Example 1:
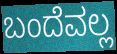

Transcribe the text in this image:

ಬಂದೆವಲ್ಲ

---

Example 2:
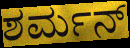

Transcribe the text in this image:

ಶರ್ಮನ್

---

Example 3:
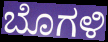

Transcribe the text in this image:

ಬೊಗಳಿ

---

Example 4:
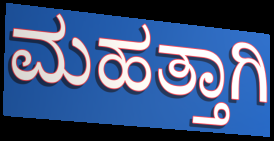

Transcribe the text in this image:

ಮಹತ್ತಾಗಿ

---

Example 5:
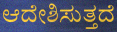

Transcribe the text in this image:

ಆದೇಶಿಸುತ್ತದೆ